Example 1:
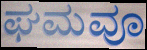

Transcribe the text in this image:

ಘಮವೂ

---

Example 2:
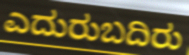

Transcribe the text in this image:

ಎದುರುಬದಿರು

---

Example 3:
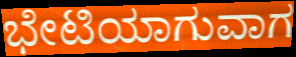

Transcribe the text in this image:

ಭೇಟಿಯಾಗುವಾಗ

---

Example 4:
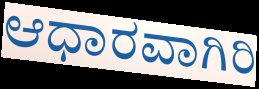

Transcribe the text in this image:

ಆಧಾರವಾಗಿರಿ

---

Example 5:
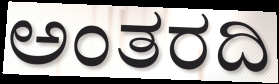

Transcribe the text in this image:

ಅಂತರದಿ